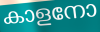
കാളനോ